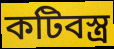
কটিবস্ত্র